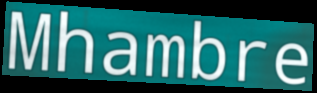
Mhambre